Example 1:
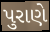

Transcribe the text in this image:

પુરાણે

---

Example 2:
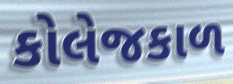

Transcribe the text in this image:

કોલેજકાળ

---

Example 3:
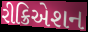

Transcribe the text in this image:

રીક્રિએશન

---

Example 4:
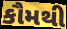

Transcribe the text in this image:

કૌમથી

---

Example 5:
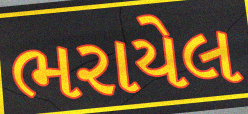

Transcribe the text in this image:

ભરાયેલ